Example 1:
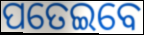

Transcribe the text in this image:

ପତେଇବେ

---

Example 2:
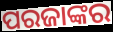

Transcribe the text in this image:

ପରଜାଙ୍କର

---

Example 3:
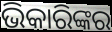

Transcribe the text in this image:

ଭିକାରିଙ୍କର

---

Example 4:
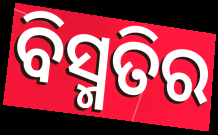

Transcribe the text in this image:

ବିସ୍ମତିର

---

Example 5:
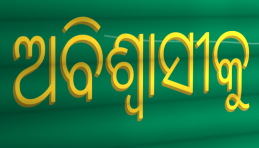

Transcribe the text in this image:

ଅବିଶ୍ୱାସୀକୁ